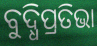
ବୁଦ୍ଧିପ୍ରତିଭା